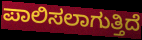
ಪಾಲಿಸಲಾಗುತ್ತಿದೆ